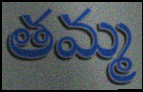
తమ్మ